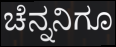
ಚೆನ್ನನಿಗೂ